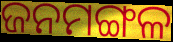
ଜନମଙ୍ଗଳ